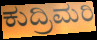
ಕುದ್ರಿಮರಿ